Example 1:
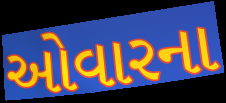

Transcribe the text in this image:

ઓવારના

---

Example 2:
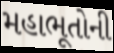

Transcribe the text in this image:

મહાભૂતોની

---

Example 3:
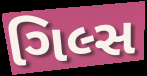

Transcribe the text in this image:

ગિલ્સ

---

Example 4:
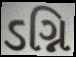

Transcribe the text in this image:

ઽગ્નિ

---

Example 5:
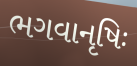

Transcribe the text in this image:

ભગવાનૃષિઃ